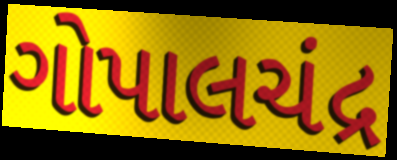
ગોપાલચંદ્ર